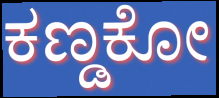
ಕಣ್ಡಕೋ